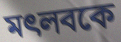
মৎলবকে